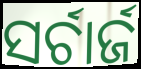
ସର୍ଚାର୍ଜ